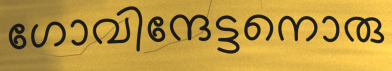
ഗോവിന്ദേട്ടനൊരു